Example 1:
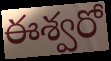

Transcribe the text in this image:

ఈశ్వరో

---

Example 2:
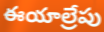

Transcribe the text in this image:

ఈయాల్రేపు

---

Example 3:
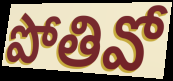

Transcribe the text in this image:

పోతివో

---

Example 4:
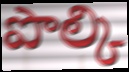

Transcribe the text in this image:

పొల్కి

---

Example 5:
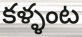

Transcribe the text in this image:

కళ్ళంట